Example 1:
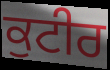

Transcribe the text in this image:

ਕੁਟੀਰ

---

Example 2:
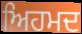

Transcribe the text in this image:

ਅਿਹਮਦ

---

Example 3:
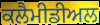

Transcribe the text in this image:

ਕਲੈਮੀਡੀਅਲ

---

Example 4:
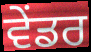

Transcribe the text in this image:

ਵੇਂਡਰ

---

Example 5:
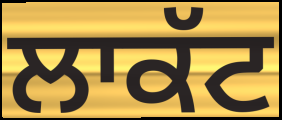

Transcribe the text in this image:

ਲਾਕੱਟ